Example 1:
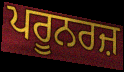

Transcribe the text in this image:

ਪਰੂਨਰਜ਼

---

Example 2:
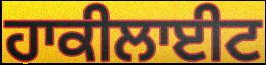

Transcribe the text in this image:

ਹਾਕੀਲਾਈਟ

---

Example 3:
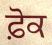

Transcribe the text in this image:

ਫ਼ੋਕ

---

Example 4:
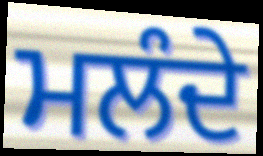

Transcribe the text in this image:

ਮਲੰਦੇ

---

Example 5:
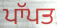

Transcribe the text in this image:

ਪਾੱਪਤ